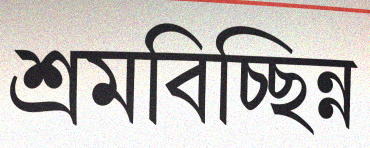
শ্রমবিচ্ছিন্ন